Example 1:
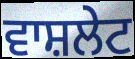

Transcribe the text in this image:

ਵਾਸ਼ਲੇਟ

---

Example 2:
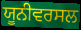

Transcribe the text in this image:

ਯੂਨੀਵਰਸਲ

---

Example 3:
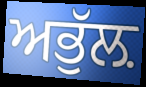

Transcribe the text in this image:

ਅਭੁੱਲ਼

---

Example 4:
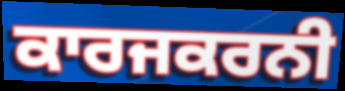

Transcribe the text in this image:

ਕਾਰਜਕਰਨੀ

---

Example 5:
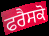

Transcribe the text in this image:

ਫਰੈਸਕੋ